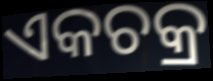
ଏକଚକ୍ର